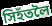
সিহঁতলৈ